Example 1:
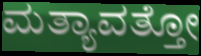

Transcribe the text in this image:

ಮತ್ಯಾವತ್ತೋ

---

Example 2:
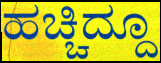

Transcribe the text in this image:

ಹಚ್ಚಿದ್ದೂ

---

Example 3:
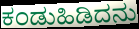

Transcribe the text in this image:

ಕಂಡುಹಿಡಿದನು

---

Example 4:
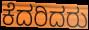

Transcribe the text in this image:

ಕೆದರಿದರು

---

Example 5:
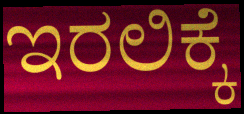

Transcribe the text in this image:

ಇರಲಿಕ್ಕೆ